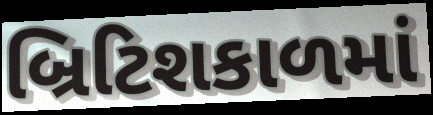
બ્રિટિશકાળમાં